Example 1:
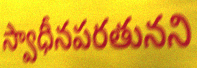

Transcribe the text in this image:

స్వాధీనపరతునని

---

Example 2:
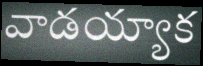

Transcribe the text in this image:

వాడయ్యాక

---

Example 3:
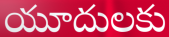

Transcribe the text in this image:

యూదులకు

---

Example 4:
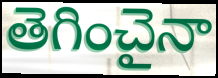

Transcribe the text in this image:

తెగించైనా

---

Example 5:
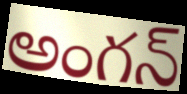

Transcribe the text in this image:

అంగన్